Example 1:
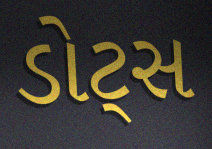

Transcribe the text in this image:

ડોટ્સ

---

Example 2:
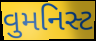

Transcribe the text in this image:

વુમનિસ્ટ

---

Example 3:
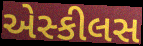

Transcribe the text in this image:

એસ્કીલસ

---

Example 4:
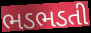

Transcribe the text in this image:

ભડભડતી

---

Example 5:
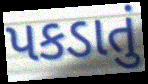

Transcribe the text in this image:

પકડાતું